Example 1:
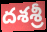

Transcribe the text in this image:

దశశ్రీ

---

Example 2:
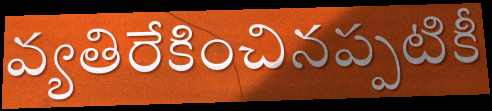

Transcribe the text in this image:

వ్యతిరేకించినప్పటికీ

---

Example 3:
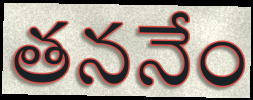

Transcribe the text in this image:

తననేం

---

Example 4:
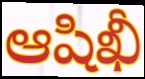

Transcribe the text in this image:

ఆషిఖీ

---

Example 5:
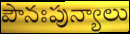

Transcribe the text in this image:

పౌనఃపున్యాలు